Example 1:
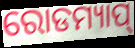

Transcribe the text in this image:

ରୋଡମ୍ୟାପ୍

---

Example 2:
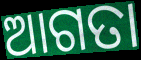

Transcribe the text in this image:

ଆଗତା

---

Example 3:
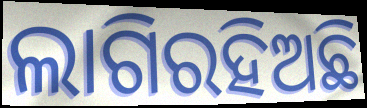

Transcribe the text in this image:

ଲାଗିରହିଅଛି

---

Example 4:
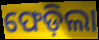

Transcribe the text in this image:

ଫେଡ଼ିଲା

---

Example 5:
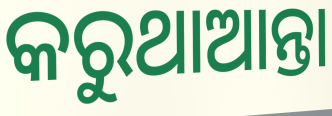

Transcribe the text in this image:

କରୁଥାଆନ୍ତା